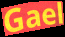
Gael